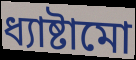
ধ্যাষ্টামো